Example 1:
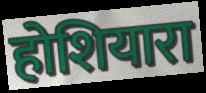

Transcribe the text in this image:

होशियारा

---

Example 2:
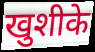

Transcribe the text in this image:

खुशीके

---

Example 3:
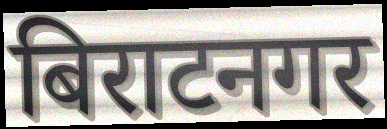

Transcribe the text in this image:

बिराटनगर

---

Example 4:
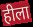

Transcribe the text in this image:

हीला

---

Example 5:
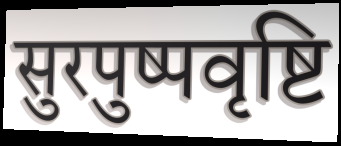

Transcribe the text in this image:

सुरपुष्पवृष्टि